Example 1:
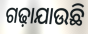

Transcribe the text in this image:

ଗଢ଼ାଯାଉଛି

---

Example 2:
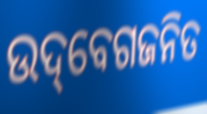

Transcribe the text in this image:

ଉଦ୍‌ବେଗଜନିତ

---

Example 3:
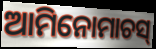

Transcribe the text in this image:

ଆମିନୋମାଚସ୍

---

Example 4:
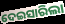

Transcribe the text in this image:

ଦେଇସାରିଲା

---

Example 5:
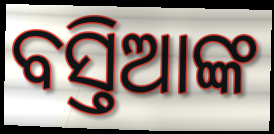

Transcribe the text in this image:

ବସ୍ତିଆଙ୍କ